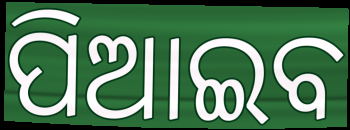
ପିଆଇବ